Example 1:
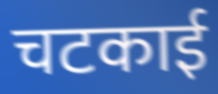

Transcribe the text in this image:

चटकाई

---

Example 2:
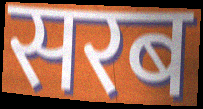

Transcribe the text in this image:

सरब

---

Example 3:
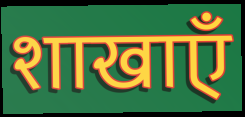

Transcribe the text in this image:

शाखाएँ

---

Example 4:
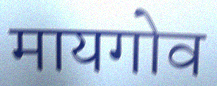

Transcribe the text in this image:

मायगोव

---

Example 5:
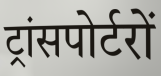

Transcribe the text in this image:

ट्रांसपोर्टरों